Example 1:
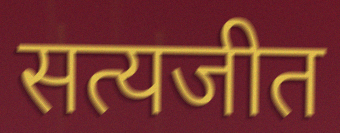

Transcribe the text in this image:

सत्यजीत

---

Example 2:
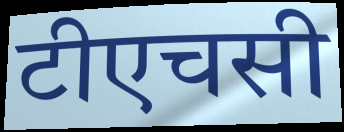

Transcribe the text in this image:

टीएचसी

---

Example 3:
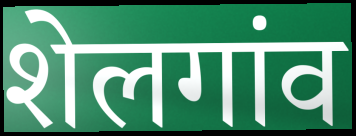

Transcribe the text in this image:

शेलगांव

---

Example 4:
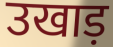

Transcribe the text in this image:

उखाड़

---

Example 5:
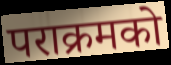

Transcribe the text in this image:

पराक्रमको